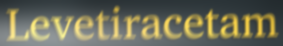
Levetiracetam